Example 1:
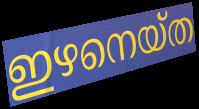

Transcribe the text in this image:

ഇഴനെയ്ത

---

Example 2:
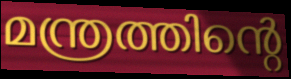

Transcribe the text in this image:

മന്ത്രത്തിന്റെ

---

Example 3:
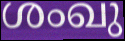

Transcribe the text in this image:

ശംഖു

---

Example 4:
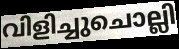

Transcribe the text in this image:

വിളിച്ചുചൊല്ലി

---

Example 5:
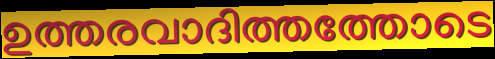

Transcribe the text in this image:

ഉത്തരവാദിത്തത്തോടെ